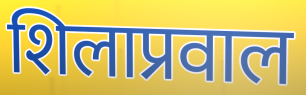
शिलाप्रवाल